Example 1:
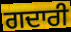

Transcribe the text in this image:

ਗਦਾਰੀ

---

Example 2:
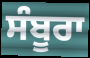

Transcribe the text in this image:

ਸੰਬੂਰਾ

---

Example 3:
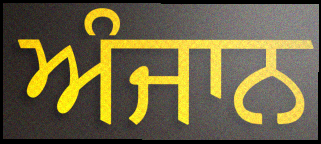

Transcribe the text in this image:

ਅੰਜਾਨ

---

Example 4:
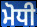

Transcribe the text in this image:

ਮੋਧੀ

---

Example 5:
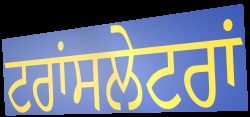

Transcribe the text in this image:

ਟਰਾਂਸਲੇਟਰਾਂ